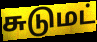
சுடுமட்